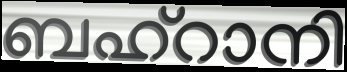
ബഹ്റാനി